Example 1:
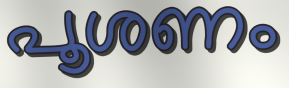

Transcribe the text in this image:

പൂശണം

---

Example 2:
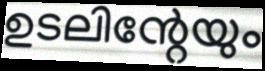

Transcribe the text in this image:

ഉടലിന്റേയും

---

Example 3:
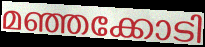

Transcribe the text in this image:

മഞ്ഞക്കോടി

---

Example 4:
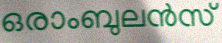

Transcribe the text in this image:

ഒരാംബുലൻസ്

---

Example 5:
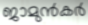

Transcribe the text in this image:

ജാമുൻകർ